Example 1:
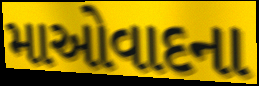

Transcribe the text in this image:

માઓવાદના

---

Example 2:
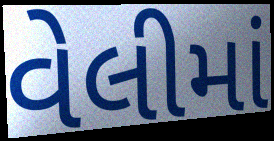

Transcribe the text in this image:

વેલીમાં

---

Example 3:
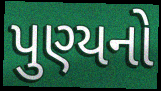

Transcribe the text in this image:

પુણ્યનો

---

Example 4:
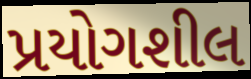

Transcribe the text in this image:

પ્રયોગશીલ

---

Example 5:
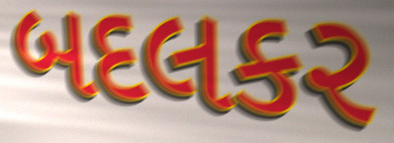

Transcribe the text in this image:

બદલકર